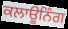
ਕਲਾਊਨਿੰਗ